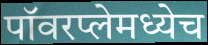
पॉवरप्लेमध्येच